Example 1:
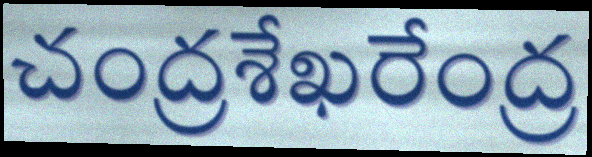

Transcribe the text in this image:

చంద్రశేఖరేంద్ర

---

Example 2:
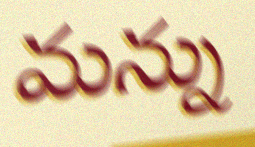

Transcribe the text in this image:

మన్ను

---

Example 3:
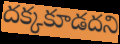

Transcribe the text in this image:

దక్కకూడదని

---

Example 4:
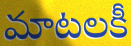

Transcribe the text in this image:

మాటలకీ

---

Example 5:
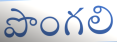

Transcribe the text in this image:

పొంగలి